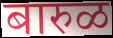
बारुळ